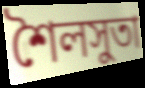
শৈলসুতা